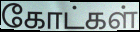
கோட்கள்